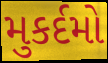
મુકર્દમો